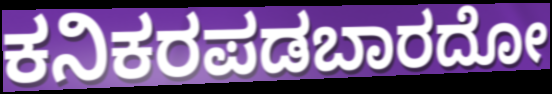
ಕನಿಕರಪಡಬಾರದೋ